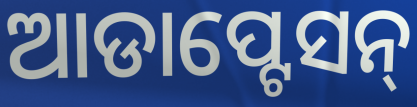
ଆଡାପ୍ଟେସନ୍